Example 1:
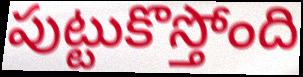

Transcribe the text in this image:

పుట్టుకొస్తోంది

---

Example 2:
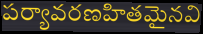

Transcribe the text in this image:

పర్యావరణహితమైనవి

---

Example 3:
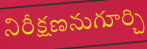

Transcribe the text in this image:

నిరీక్షణనుగూర్చి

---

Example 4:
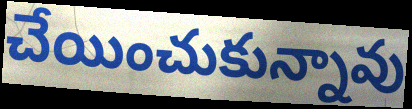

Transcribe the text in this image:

చేయించుకున్నావు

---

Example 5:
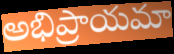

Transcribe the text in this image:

అభిప్రాయమా